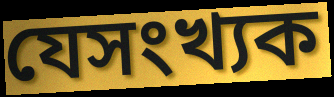
যেসংখ্যক